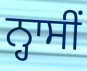
ਨ੍ਹਾਸੀਂ